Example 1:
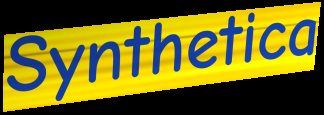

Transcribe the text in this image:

Synthetica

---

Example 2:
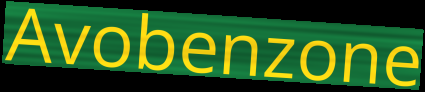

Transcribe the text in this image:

Avobenzone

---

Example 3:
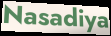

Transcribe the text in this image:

Nasadiya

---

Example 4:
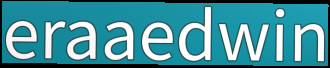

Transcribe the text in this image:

eraaedwin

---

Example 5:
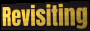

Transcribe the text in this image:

Revisiting